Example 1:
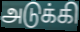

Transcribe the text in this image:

அடுக்கி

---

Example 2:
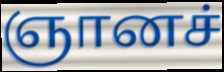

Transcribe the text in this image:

ஞானச்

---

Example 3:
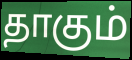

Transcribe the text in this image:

தாகும்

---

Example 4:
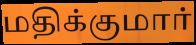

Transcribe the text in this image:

மதிக்குமார்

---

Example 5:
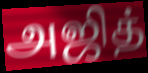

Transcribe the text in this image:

அஜித்